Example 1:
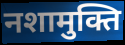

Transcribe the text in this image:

नशामुक्ति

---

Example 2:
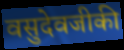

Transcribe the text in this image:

वसुदेवजीकी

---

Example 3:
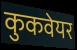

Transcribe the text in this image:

कुकवेयर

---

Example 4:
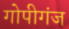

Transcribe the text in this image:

गोपीगंज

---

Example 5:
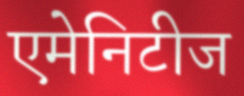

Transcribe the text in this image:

एमेनिटीज